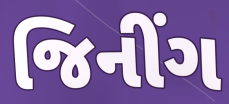
જિનીંગ